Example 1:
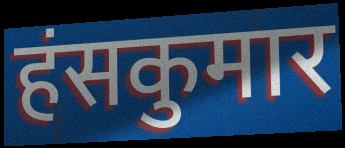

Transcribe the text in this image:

हंसकुमार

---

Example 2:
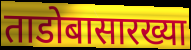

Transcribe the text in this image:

ताडोबासारख्या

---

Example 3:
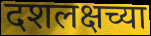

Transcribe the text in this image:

दशलक्षच्या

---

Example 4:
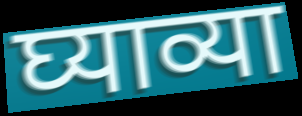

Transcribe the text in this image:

घ्याव्या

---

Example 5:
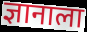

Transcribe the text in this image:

ज्ञानाला